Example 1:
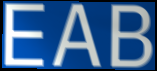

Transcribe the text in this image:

EAB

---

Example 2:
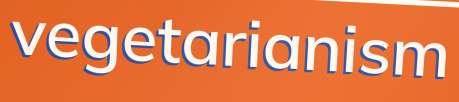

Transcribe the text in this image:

vegetarianism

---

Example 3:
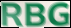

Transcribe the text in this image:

RBG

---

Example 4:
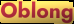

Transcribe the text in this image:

Oblong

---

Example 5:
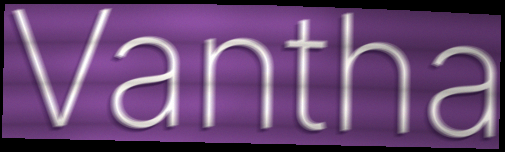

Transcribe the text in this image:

Vantha